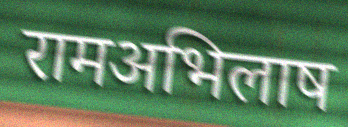
रामअभिलाष